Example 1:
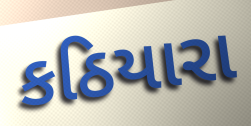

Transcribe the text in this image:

કઠિયારા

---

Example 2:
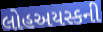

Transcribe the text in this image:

લોહઅયસ્કની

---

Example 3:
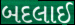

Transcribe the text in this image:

બદલાઈ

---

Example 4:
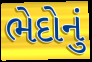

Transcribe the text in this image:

ભેદોનું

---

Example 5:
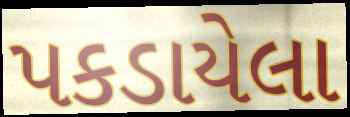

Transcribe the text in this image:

પકડાયેલા